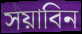
সয়াবিন